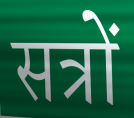
सत्रों